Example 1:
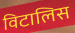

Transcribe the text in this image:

विटालिस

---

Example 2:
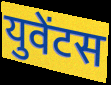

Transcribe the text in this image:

युवेंटस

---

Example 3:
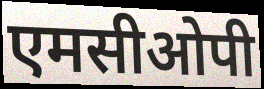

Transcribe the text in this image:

एमसीओपी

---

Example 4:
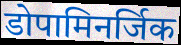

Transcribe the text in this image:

डोपामिनर्जिक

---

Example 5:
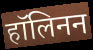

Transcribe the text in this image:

हॉलिनन